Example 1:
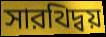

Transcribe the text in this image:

সারথিদ্বয়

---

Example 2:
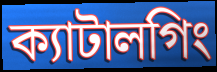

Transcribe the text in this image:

ক্যাটালগিং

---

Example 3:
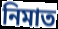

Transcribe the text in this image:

নিমাত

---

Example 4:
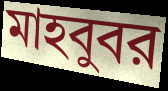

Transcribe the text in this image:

মাহবুবর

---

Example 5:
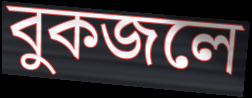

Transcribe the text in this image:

বুকজলে